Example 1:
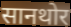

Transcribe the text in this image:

सानथोर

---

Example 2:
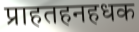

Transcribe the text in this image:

प्राहतहनहधक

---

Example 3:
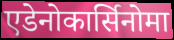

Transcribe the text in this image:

एडेनोकार्सिनोमा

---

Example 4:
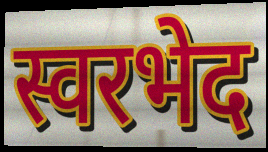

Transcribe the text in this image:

स्वरभेद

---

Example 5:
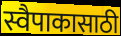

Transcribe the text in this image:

स्वैपाकासाठी